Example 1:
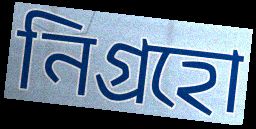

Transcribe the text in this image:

নিগ্রহো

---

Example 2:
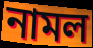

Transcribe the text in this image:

নামল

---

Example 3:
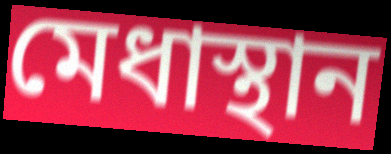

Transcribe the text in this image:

মেধাস্থান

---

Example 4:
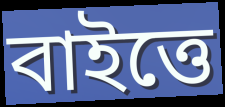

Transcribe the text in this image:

বাইত্তে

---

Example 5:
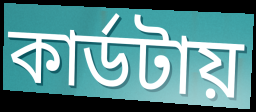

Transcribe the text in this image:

কার্ডটায়